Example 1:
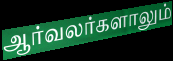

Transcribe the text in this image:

ஆர்வலர்களாலும்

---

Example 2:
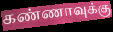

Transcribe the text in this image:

கண்ணாவுக்கு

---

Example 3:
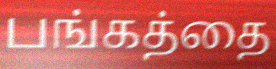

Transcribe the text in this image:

பங்கத்தை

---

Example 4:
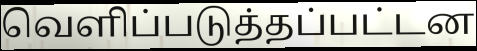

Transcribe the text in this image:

வெளிப்படுத்தப்பட்டன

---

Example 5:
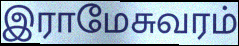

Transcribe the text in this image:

இராமேசுவரம்